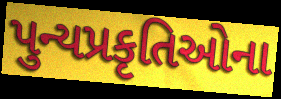
પુન્યપ્રકૃતિઓના